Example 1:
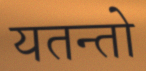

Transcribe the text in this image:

यतन्तो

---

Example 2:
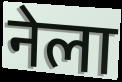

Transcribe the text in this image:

नेला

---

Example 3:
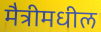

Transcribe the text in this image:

मैत्रीमधील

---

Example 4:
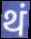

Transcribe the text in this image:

थं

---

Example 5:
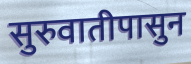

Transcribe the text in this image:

सुरुवातीपासुन